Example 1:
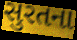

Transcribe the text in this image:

સુરતના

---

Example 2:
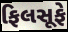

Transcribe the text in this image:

ફિલસૂફે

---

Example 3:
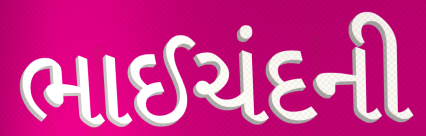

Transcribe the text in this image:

ભાઈચંદની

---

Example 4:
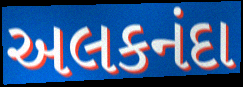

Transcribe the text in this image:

અલકનંદા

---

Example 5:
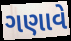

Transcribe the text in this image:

ગણાવે